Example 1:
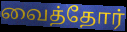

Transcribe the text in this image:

வைத்தோர்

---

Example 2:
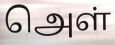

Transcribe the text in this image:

அெள்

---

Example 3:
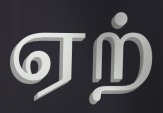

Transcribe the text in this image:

ஏற்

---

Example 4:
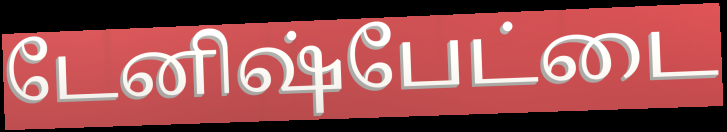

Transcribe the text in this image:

டேனிஷ்பேட்டை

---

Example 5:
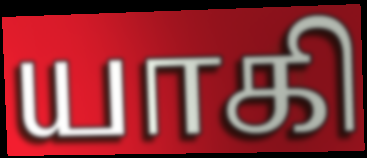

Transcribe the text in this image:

யாகி